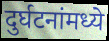
दुर्घटनांमध्ये